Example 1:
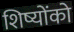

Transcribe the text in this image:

शिष्योंको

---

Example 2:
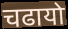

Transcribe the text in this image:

चढायो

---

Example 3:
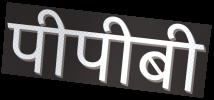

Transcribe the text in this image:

पीपीबी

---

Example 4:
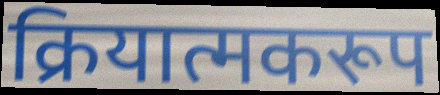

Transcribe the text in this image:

क्रियात्मकरूप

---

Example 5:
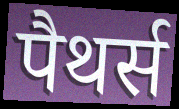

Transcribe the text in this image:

पैथर्स